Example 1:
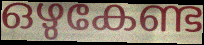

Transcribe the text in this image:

ഒഴുകേണ്ട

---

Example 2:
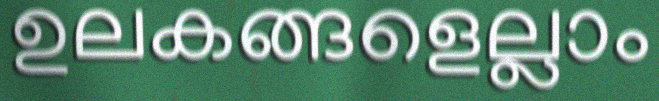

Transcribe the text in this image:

ഉലകങ്ങളെല്ലാം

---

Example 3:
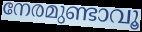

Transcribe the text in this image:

നേരമുണ്ടാവൂ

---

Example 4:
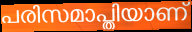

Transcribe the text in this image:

പരിസമാപ്തിയാണ്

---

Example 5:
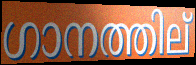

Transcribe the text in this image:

ഗാനത്തില്